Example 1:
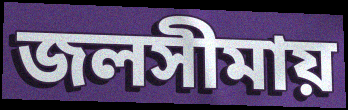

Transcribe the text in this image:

জলসীমায়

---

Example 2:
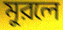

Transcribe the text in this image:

মুরলে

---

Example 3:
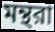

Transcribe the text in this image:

মন্থরা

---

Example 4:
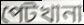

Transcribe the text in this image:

পেটখানা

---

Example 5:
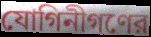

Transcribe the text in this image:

যোগিনীগণের